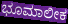
ಭೂಮಾಲೀಕ